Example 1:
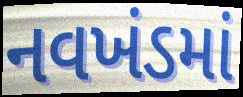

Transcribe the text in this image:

નવખંડમાં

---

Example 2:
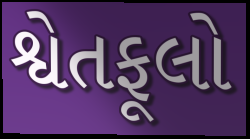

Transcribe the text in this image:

શ્વેતફૂલો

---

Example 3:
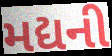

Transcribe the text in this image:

મદ્યની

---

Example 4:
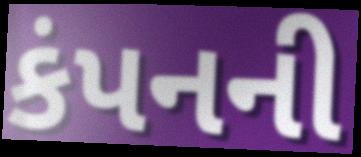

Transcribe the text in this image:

કંપનની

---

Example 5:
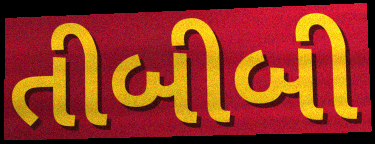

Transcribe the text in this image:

તીબીબી